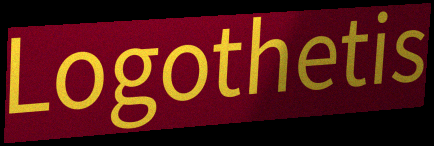
Logothetis